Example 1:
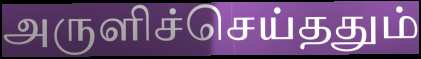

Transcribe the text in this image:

அருளிச்செய்ததும்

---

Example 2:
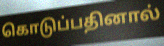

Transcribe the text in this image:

கொடுப்பதினால்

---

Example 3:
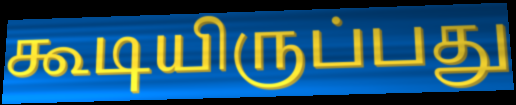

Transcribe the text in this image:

கூடியிருப்பது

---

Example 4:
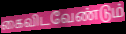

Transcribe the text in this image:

கைவிடவேண்டும்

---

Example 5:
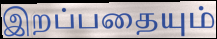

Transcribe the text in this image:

இறப்பதையும்